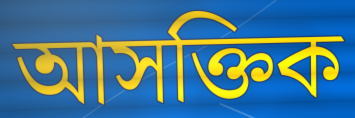
আসক্তিক